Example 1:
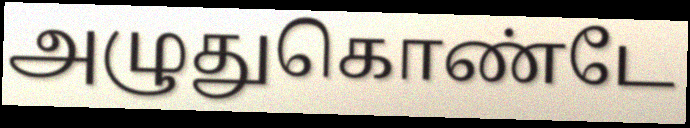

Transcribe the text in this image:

அழுதுகொண்டே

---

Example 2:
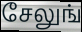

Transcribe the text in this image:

சேலுங்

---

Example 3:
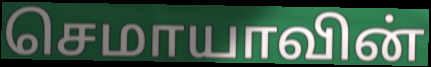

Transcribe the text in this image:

செமாயாவின்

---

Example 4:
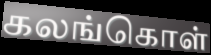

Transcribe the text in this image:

கலங்கொள்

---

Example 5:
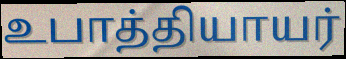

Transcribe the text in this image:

உபாத்தியாயர்